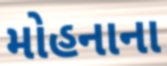
મોહનાના